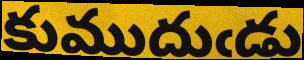
కుముదుఁడు